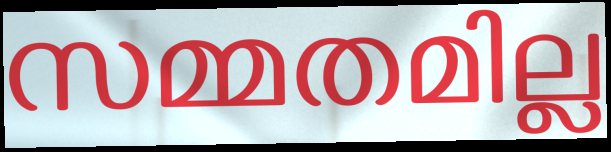
സമ്മതമില്ല